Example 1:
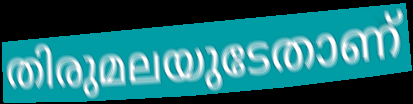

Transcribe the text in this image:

തിരുമലയുടേതാണ്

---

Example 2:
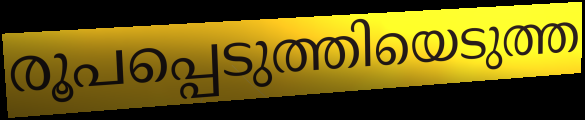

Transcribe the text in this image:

രൂപപ്പെടുത്തിയെടുത്ത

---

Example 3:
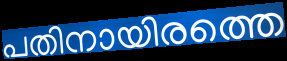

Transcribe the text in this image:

പതിനായിരത്തെ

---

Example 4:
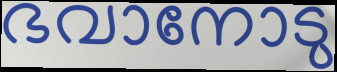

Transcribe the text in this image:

ഭവാനോടു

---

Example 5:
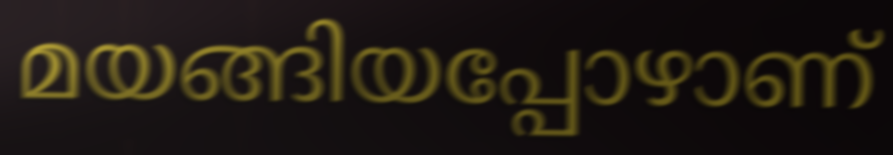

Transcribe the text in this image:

മയങ്ങിയപ്പോഴാണ്